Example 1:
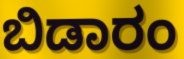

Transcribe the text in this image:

ಬಿಡಾರಂ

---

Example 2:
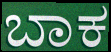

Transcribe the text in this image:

ಬಾಕ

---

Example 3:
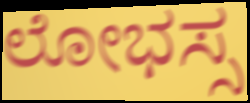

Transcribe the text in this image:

ಲೋಭಸ್ಸ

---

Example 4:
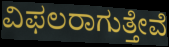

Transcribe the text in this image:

ವಿಫಲರಾಗುತ್ತೇವೆ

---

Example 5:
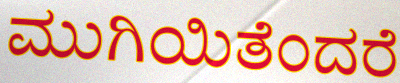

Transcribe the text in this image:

ಮುಗಿಯಿತೆಂದರೆ